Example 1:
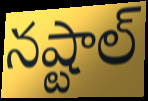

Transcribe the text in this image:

నష్టాల్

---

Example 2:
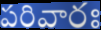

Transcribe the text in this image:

పరివారః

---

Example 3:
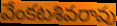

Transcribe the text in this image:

వేంకటశివరావు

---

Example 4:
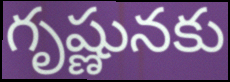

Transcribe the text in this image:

గృష్ణునకు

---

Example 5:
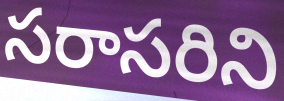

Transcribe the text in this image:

సరాసరిని